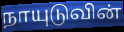
நாயுடுவின்